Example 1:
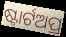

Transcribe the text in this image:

ଷ୍ଟାର୍ଟଅପ୍ର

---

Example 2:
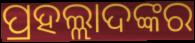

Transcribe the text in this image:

ପ୍ରହଲ୍ଲାଦଙ୍କର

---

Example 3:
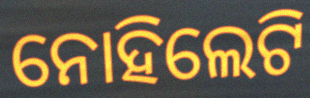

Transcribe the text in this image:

ନୋହିଲେଟି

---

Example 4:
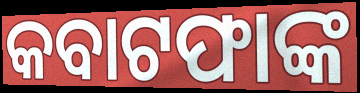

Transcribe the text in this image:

କବାଟଫାଙ୍କ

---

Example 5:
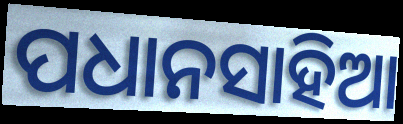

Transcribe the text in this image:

ପଧାନସାହିଆ